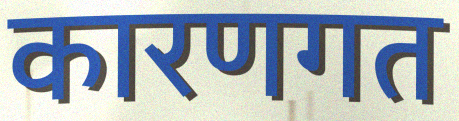
कारणगत